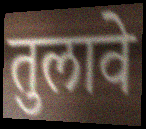
तुलावे